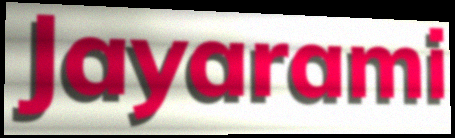
Jayarami